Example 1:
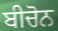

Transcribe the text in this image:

ਬੀਚੋਨ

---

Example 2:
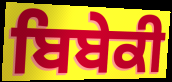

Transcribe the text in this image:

ਬਿਬੇਕੀ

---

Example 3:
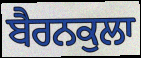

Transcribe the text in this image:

ਬੈਰਨਕੁਲਾ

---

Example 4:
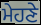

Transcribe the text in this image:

ਮੇਹਣੇ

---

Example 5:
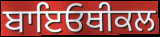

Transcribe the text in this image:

ਬਾਇਓਥੀਕਲ